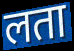
लता